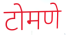
टोमणे